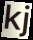
kj